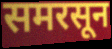
समरसून